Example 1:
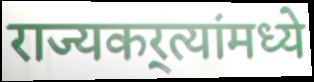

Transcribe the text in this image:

राज्यकर्त्यांमध्ये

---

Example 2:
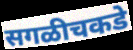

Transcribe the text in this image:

सगळीचकडे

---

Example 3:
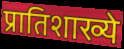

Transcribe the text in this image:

प्रातिशाख्ये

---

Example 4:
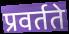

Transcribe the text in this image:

प्रवर्तते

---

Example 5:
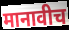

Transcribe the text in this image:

मानावीच